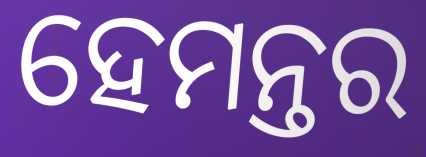
ହେମନ୍ତର